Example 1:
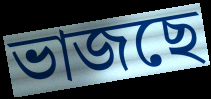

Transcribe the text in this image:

ভাজছে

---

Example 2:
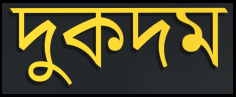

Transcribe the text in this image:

দুকদম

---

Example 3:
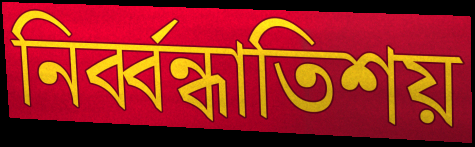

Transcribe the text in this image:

নির্ব্বন্ধাতিশয়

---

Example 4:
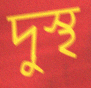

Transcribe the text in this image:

দুস্থ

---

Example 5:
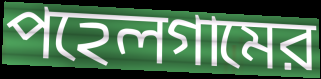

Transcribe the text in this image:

পহেলগামের